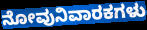
ನೋವುನಿವಾರಕಗಳು